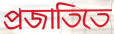
প্রজাতিতে